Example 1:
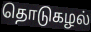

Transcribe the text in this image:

தொடுகழல்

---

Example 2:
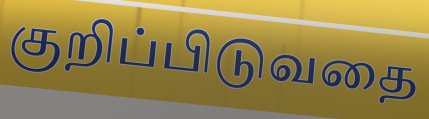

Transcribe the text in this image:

குறிப்பிடுவதை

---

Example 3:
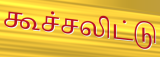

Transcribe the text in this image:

கூச்சலிட்டு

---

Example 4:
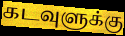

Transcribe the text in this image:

கடவுளுக்கு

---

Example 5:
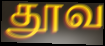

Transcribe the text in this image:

தூவ